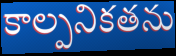
కాల్పనికతను